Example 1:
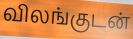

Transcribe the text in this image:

விலங்குடன்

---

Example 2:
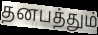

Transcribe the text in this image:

தனபத்தும்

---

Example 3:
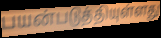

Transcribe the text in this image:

பயன்படுத்தியுள்ளது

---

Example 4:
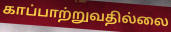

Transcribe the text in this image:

காப்பாற்றுவதில்லை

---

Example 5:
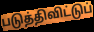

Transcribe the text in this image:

படுத்திவிட்டுப்